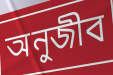
অনুজীব